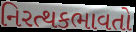
નિરત્થકભાવતો